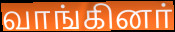
வாங்கினர்